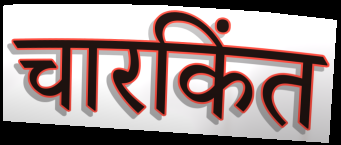
चारकिंत